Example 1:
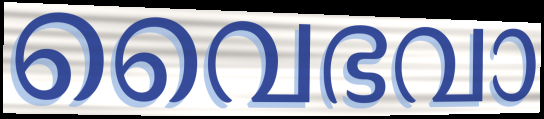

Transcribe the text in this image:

വൈഭവാ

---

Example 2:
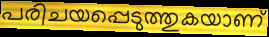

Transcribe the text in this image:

പരിചയപ്പെടുത്തുകയാണ്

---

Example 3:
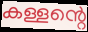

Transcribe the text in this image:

കള്ളന്റെ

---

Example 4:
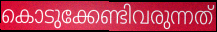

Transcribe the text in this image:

കൊടുക്കേണ്ടിവരുന്നത്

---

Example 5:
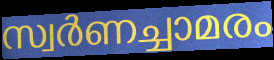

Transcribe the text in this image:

സ്വർണച്ചാമരം